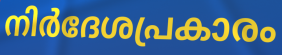
നിർദേശപ്രകാരം